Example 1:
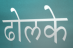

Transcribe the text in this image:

ढोलके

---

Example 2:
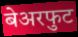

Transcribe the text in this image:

बेअरफुट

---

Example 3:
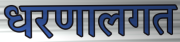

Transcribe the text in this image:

धरणालगत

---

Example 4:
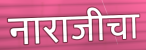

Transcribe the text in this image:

नाराजीचा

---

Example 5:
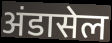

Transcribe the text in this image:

अंडासेल